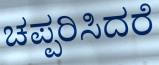
ಚಪ್ಪರಿಸಿದರೆ